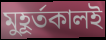
মুহূর্তকালই